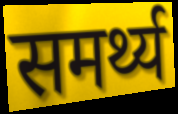
समर्थ्य